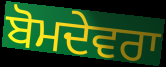
ਬੋਮਦੇਵਰਾ